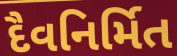
દૈવનિર્મિત